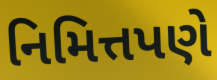
નિમિત્તપણે